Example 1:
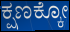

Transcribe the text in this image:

ಕ್ಷಣಕ್ಕೋ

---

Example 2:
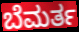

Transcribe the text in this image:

ಬೆಮರ್ತ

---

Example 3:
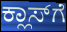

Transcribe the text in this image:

ಕ್ಲಾಸ್‍ಗೆ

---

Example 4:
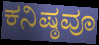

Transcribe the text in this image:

ಕನಿಷ್ಠವೂ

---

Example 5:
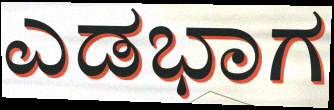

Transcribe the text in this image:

ಎಡಭಾಗ